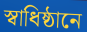
স্বাধিষ্ঠানে